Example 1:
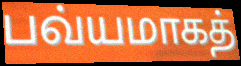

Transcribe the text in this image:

பவ்யமாகத்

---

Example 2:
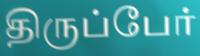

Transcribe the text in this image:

திருப்பேர்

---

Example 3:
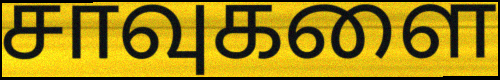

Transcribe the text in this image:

சாவுகளை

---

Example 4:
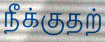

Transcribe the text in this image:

நீக்குதற்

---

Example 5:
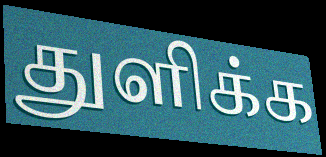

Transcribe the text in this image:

துளிக்க